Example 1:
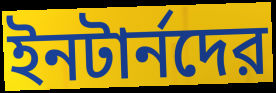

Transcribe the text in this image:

ইনটার্নদের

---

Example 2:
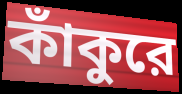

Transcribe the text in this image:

কাঁকুরে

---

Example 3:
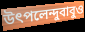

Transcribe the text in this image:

উৎপলেন্দুবাবুও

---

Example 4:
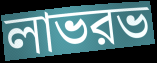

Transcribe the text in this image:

লাভরভ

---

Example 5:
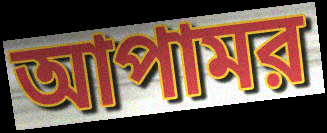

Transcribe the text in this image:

আপামর